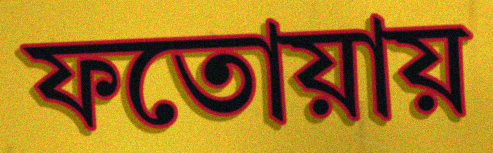
ফতোয়ায়